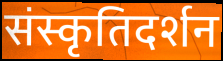
संस्कृतिदर्शन